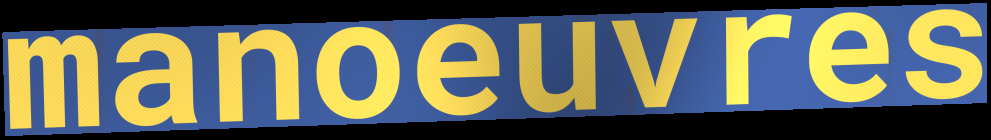
manoeuvres